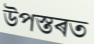
উপস্তৰত